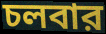
চলবার